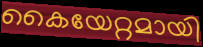
കൈയേറ്റമായി